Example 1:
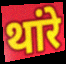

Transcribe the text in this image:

थांरे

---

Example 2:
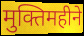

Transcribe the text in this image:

मुक्तिमहीने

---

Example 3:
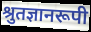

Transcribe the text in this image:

श्रुतज्ञानरूपी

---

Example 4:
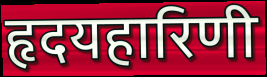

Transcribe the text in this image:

हृदयहारिणी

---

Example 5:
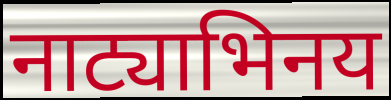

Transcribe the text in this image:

नाट्याभिनय